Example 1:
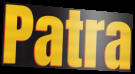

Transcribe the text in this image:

Patra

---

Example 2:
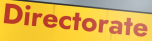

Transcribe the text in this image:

Directorate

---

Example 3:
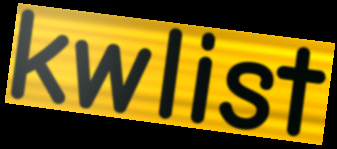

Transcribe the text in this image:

kwlist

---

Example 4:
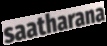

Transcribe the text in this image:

saatharana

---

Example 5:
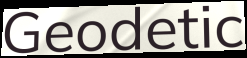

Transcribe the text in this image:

Geodetic